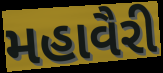
મહાવૈરી